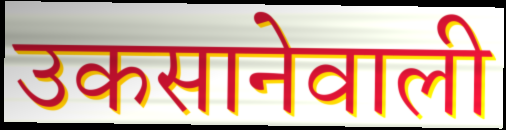
उकसानेवाली